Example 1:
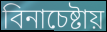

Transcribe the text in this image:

বিনাচেষ্টায়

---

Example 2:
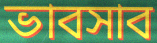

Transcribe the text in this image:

ভাবসাব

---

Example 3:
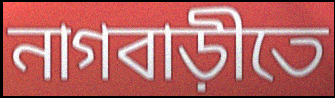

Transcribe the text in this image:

নাগবাড়ীতে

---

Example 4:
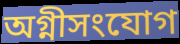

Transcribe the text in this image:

অগ্নীসংযোগ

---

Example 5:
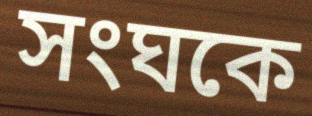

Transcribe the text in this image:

সংঘকে